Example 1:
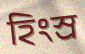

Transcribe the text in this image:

হিংস্ৰ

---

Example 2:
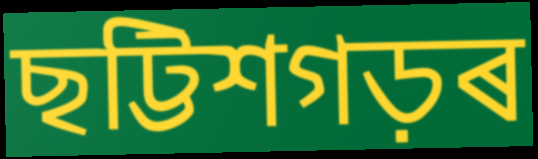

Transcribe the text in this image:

ছট্টিশগড়ৰ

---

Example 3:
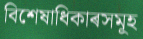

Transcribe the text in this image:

বিশেষাধিকাৰসমূহ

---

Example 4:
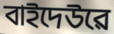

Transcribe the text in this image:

বাইদেউৱে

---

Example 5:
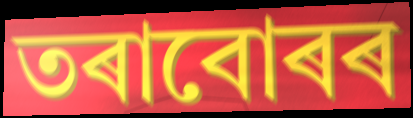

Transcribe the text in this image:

তৰাবোৰৰ